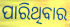
ପାରିଥିବାର